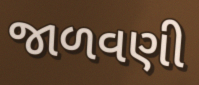
જાળવણી